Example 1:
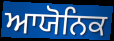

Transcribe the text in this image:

ਆਯੋਨਿਕ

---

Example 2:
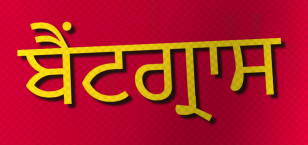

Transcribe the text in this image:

ਬੈਂਟਗ੍ਰਾਸ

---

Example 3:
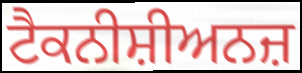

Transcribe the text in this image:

ਟੈਕਨੀਸ਼ੀਅਨਜ਼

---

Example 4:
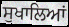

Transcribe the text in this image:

ਸੁਖਾਲਿਆਂ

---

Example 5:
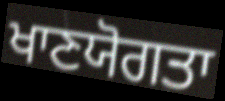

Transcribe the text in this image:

ਖਾਣਯੋਗਤਾ